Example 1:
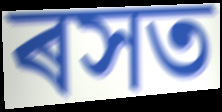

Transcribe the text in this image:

ৰসত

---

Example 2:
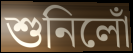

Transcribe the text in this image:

শুনিলোঁ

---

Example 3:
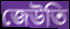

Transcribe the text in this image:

জেউতি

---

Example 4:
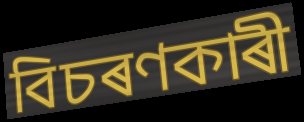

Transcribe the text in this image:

বিচৰণকাৰী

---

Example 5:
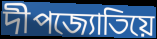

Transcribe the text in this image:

দীপজ্যোতিয়ে